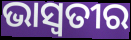
ଭାସ୍ଵତୀର